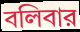
বলিবার